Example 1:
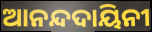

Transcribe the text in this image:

ଆନନ୍ଦଦାୟିନୀ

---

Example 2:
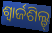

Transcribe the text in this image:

ଶ୍ୱାର୍ଜଶିଲ୍ଡ୍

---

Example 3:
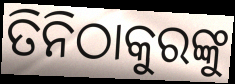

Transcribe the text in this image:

ତିନିଠାକୁରଙ୍କୁ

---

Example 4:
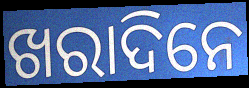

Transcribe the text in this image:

ଖରାଦିନେ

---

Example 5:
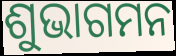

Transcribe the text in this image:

ଶୁଭାଗମନ